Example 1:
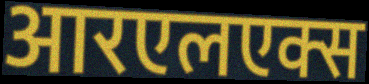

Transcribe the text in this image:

आरएलएक्स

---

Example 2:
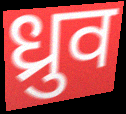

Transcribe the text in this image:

ध्रुव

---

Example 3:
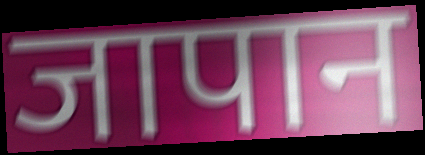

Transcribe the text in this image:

जापान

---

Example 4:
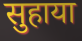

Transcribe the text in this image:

सुहाया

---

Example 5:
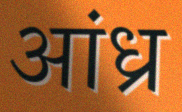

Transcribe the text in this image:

आंध्र